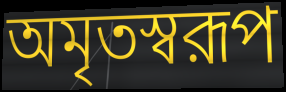
অমৃতস্বরূপ